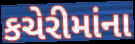
કચેરીમાંના